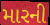
મારની